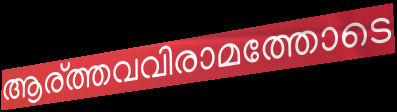
ആര്ത്തവവിരാമത്തോടെ